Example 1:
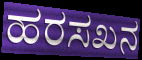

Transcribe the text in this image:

ಹರಸಖನ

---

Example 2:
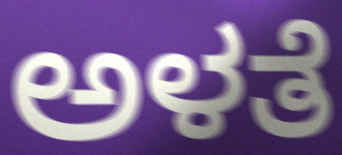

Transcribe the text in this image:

ಅಳತೆ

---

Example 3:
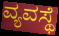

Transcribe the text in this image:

ವ್ಯವಸ್ಥೆ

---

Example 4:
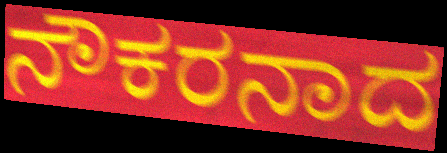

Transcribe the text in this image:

ನೌಕರನಾದ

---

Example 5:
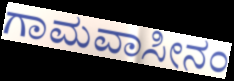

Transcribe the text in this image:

ಗಾಮವಾಸೀನಂ